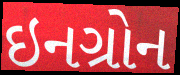
ઇનગ્રોન